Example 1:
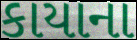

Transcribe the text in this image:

કાયાના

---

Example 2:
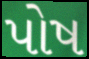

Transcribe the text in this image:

પોષ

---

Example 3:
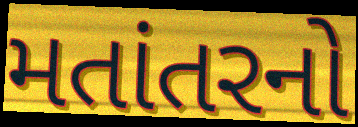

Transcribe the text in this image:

મતાંતરનો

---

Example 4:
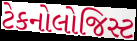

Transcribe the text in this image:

ટેકનોલોજિસ્ટ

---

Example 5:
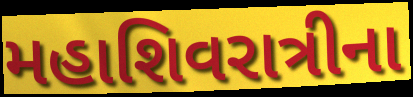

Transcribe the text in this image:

મહાશિવરાત્રીના